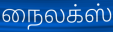
நைலக்ஸ்